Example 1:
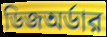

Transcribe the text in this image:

ডিজঅর্ডার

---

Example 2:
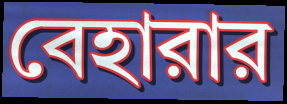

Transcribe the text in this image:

বেহারার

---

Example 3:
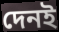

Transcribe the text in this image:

দেনই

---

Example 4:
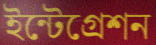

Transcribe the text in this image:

ইন্টেগ্রেশন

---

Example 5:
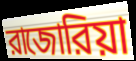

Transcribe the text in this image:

রাজোরিয়া